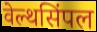
वेल्थसिंपल